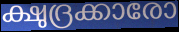
ക്ഷുദ്രക്കാരോ